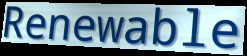
Renewable